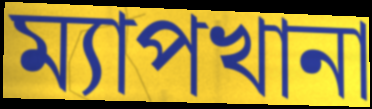
ম্যাপখানা